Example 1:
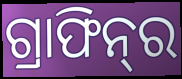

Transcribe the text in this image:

ଗ୍ରାଫିନ୍‌ର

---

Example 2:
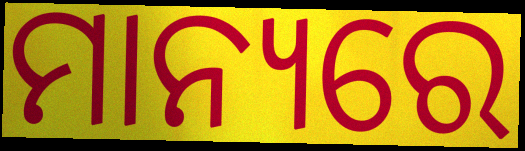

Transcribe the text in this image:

ମାନ୍ୟରେ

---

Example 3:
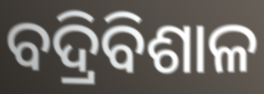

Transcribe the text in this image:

ବଦ୍ରିବିଶାଳ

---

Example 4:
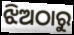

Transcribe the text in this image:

ଝିଅଠାରୁ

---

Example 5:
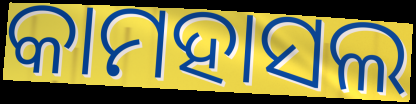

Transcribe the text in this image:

କାମହାସଲ